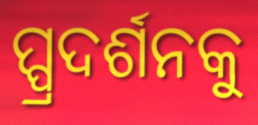
ପ୍ପ୍ରଦର୍ଶନକୁ